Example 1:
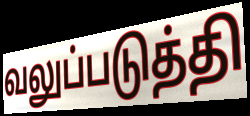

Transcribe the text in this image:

வலுப்படுத்தி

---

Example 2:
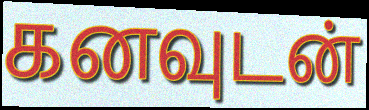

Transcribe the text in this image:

கனவுடன்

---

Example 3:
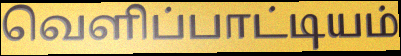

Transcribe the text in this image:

வெளிப்பாட்டியம்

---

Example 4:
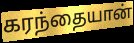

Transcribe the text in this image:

கரந்தையான்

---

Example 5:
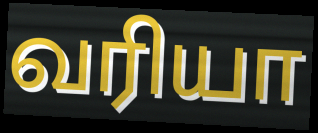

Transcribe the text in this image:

வரியா